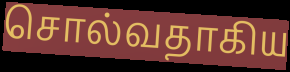
சொல்வதாகிய